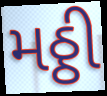
મઠ્ઠી